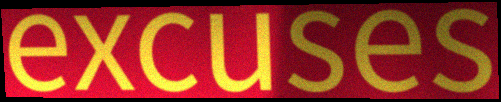
excuses